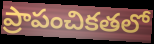
ప్రాపంచికతలో